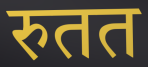
रुतत